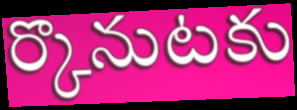
ర్కొనుటకు